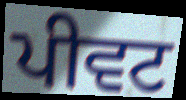
ਪੀਵਟ